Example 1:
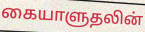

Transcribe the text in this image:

கையாளுதலின்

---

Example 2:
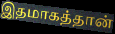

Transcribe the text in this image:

இதமாகத்தான்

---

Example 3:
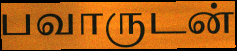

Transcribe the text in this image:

பவாருடன்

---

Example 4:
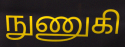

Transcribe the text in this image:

நுணுகி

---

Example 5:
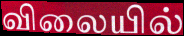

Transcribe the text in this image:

விலையில்